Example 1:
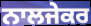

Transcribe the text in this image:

ਨਾਲਜੇਕਰ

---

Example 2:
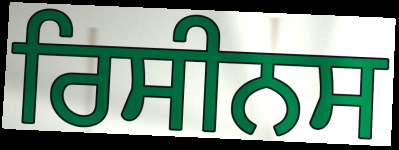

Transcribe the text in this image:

ਰਿਸੀਨਸ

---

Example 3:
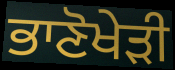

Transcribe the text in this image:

ਭਾਣੋਖੇੜੀ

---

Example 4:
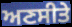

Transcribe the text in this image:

ਅਣਸੀਤੇ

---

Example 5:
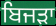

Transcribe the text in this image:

ਬਿਜੜਾ